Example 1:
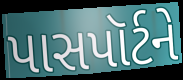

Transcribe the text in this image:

પાસપૉર્ટને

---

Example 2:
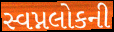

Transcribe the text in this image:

સ્વપ્નલોકની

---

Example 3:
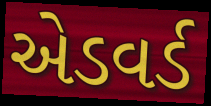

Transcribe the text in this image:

એડવર્ડ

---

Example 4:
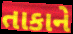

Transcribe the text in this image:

તાકાને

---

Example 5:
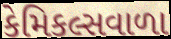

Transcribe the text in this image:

કેમિકલ્સવાળા